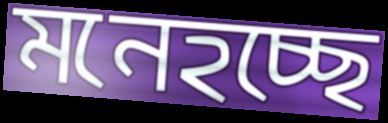
মনেহচ্ছে